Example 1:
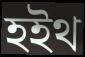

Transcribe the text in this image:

হইথ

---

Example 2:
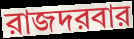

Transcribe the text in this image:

রাজদরবার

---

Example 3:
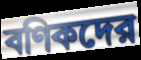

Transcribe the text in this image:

বণিকদের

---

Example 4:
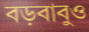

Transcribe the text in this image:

বড়বাবুও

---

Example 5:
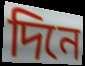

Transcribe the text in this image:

দিনে